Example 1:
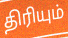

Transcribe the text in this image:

திரியும்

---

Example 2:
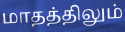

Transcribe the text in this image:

மாதத்திலும்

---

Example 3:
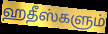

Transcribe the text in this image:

ஹதீஸ்களும்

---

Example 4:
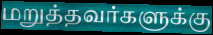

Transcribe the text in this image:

மறுத்தவர்களுக்கு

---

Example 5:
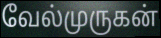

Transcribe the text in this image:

வேல்முருகன்